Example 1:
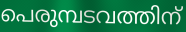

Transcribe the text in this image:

പെരുമ്പടവത്തിന്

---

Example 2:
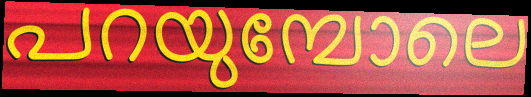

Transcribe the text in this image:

പറയുമ്പോലെ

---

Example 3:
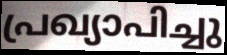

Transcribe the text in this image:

പ്രഖ്യാപിച്ചു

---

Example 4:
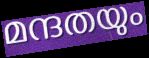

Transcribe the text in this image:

മന്ദതയും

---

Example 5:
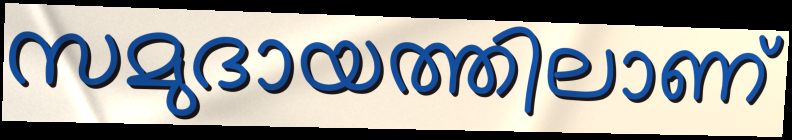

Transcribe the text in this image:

സമുദായത്തിലാണ്